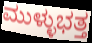
ಮುಳ್ಳುಭತ್ತ